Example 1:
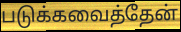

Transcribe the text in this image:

படுக்கவைத்தேன்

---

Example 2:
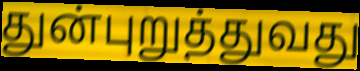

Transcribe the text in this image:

துன்புறுத்துவது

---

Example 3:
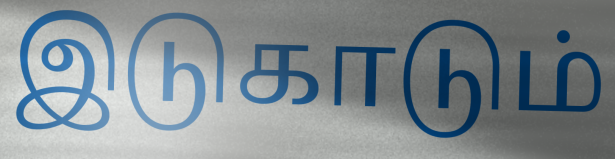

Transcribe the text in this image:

இடுகாடும்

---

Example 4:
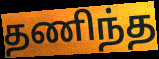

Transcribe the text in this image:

தணிந்த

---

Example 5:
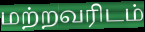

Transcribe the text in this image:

மற்றவரிடம்